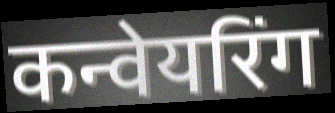
कन्वेयरिंग